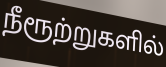
நீரூற்றுகளில்